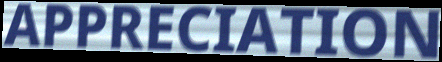
APPRECIATION